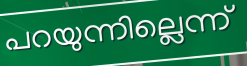
പറയുന്നില്ലെന്ന്